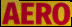
AERO